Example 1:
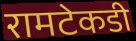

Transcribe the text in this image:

रामटेकडी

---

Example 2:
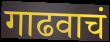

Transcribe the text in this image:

गाढवाचं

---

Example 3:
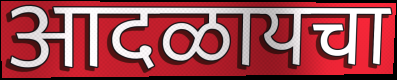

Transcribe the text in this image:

आदळायचा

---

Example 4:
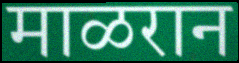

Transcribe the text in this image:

माळरान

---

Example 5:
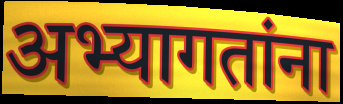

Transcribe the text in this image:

अभ्यागतांना